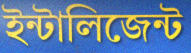
ইন্টালিজেন্ট